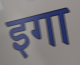
इगा